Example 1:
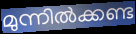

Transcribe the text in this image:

മുന്നിൽക്കണ്ട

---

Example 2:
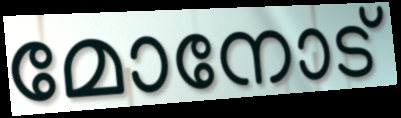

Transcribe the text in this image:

മോനോട്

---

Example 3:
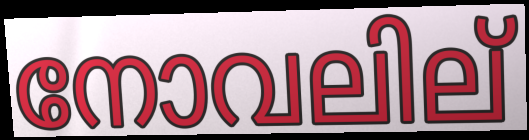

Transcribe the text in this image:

നോവലില്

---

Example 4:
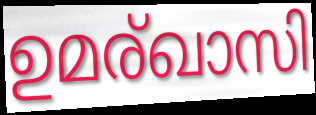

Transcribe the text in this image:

ഉമര്ഖാസി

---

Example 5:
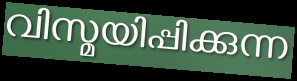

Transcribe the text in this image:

വിസ്മയിപ്പിക്കുന്ന